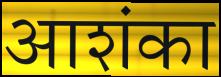
आशंका